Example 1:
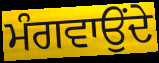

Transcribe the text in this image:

ਮੰਗਵਾਉਂਦੇ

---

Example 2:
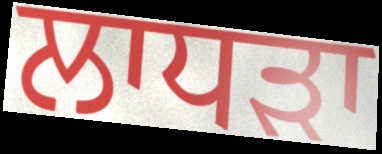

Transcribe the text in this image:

ਲਾਧੜਾ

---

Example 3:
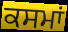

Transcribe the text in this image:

ਕਸਮਾਂ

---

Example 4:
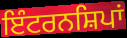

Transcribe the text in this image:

ਇੰਟਰਨਸ਼ਿਪਾਂ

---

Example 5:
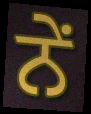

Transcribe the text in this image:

ਨੇਂ